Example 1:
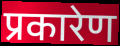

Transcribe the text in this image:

प्रकारेण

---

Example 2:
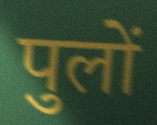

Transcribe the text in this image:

पुलों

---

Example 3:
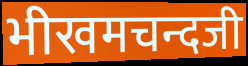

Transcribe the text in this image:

भीखमचन्दजी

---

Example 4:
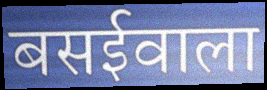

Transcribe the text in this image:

बसईवाला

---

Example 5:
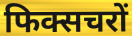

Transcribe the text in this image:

फिक्सचरों